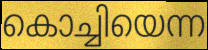
കൊച്ചിയെന്ന